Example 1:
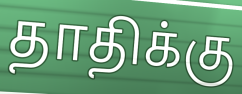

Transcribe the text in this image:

தாதிக்கு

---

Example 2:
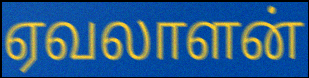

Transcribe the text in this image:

ஏவலாளன்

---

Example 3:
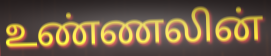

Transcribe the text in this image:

உண்ணலின்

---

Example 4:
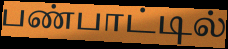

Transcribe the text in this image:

பண்பாட்டில்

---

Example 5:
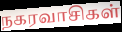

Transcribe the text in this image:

நகரவாசிகள்